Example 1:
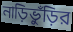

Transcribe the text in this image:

নাড়িভুঁড়ির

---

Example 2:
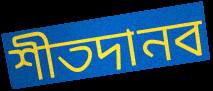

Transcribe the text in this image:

শীতদানব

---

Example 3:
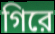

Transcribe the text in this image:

গিরে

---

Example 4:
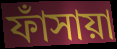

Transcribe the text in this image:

ফাঁসায়া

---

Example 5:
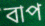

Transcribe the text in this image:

বাপ